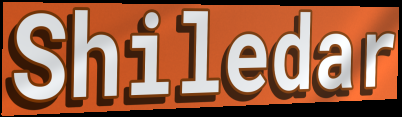
Shiledar